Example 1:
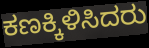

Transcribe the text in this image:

ಕಣಕ್ಕಿಳಿಸಿದರು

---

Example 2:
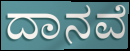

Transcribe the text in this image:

ದಾನವೆ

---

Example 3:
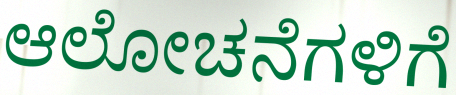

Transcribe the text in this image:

ಆಲೋಚನೆಗಳಿಗೆ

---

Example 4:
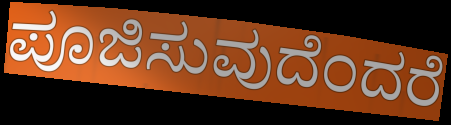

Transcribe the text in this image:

ಪೂಜಿಸುವುದೆಂದರೆ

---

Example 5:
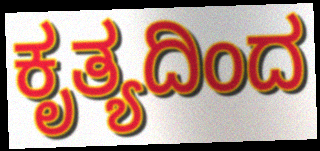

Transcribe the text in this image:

ಕೃತ್ಯದಿಂದ